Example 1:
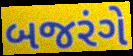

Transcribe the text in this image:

બજરંગે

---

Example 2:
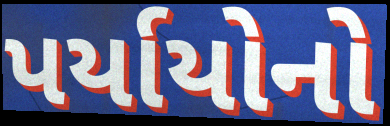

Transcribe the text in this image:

પર્યાયોનો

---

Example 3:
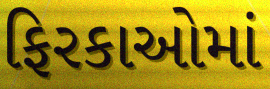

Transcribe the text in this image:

ફિરકાઓમાં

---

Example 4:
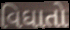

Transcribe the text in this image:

વિઘાતો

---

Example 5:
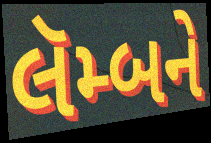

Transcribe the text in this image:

લૅમ્બને